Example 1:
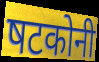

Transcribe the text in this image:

षटकोनी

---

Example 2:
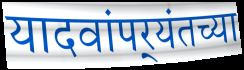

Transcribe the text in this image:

यादवांपर्यंतच्या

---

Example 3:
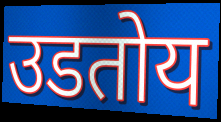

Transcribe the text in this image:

उडतोय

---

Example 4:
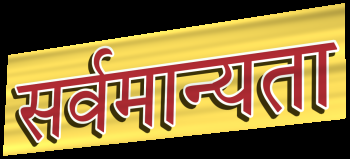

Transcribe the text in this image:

सर्वमान्यता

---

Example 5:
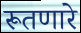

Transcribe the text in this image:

रूतणारे